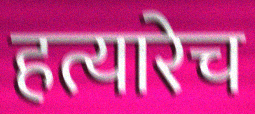
हत्यारेच